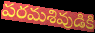
పరమశివుడికి